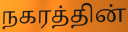
நகரத்தின்